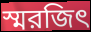
স্মরজিৎ